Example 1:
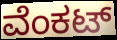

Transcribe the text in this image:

ವೆಂಕಟ್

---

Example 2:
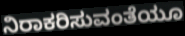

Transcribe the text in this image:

ನಿರಾಕರಿಸುವಂತೆಯೂ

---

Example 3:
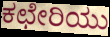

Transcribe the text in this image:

ಕಛೇರಿಯು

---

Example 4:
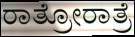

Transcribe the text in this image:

ರಾತ್ರೋರಾತ್ರೆ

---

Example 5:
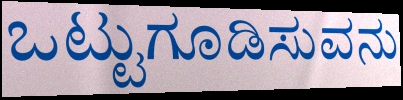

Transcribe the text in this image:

ಒಟ್ಟುಗೂಡಿಸುವನು